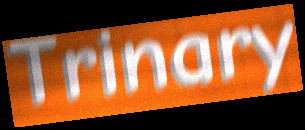
Trinary